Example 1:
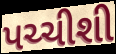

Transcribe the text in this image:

પચ્ચીશી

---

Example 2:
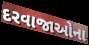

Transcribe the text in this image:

દરવાજાઓના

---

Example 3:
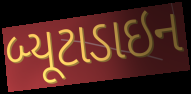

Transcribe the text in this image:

બ્યૂટાડાઇન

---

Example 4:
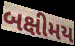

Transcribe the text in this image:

બક્ષીમય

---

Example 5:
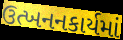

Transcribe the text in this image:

ઉત્ખનનકાર્યમાં